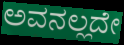
ಅವನಲ್ಲದೇ